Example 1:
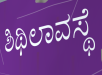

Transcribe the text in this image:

ಶಿಥಿಲಾವಸ್ಥೆ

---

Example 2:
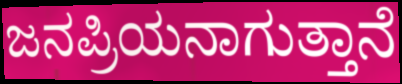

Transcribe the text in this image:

ಜನಪ್ರಿಯನಾಗುತ್ತಾನೆ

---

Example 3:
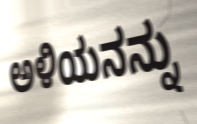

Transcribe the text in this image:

ಅಳಿಯನನ್ನು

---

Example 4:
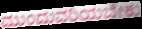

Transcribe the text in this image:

ಮುಂದುವರಿಯಬೇಕು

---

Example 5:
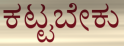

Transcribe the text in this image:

ಕಟ್ಟಬೇಕು